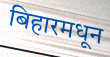
बिहारमधून